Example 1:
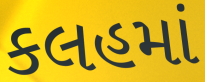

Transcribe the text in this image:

કલહમાં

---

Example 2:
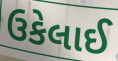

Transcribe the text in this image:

ઉકેલાઈ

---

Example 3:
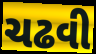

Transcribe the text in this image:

ચઢવી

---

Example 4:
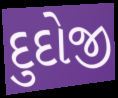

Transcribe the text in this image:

દુદોજી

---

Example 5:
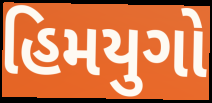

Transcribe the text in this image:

હિમયુગો